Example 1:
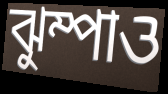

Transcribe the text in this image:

ঝুম্পাও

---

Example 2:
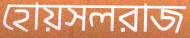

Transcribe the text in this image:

হোয়সলরাজ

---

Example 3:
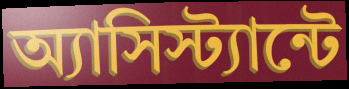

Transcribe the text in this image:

অ্যাসিস্ট্যান্টে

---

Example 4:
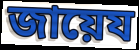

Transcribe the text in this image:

জায়েয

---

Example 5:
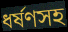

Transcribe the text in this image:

ধর্ষণসহ